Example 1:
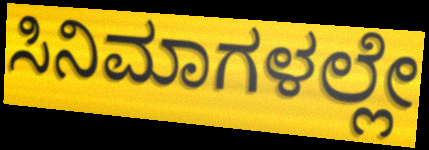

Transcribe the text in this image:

ಸಿನಿಮಾಗಳಲ್ಲೇ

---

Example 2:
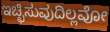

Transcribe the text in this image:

ಇಚ್ಛಿಸುವುದಿಲ್ಲವೋ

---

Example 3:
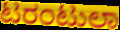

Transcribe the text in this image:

ಟರಂಟುಲಾ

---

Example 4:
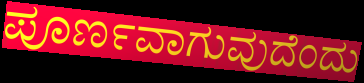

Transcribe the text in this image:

ಪೂರ್ಣವಾಗುವುದೆಂದು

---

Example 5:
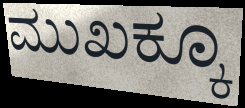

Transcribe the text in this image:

ಮುಖಕ್ಕೂ